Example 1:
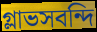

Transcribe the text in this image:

গ্লাভসবন্দি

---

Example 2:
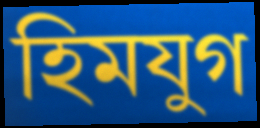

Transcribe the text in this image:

হিমযুগ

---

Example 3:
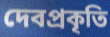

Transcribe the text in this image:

দেবপ্রকৃতি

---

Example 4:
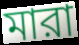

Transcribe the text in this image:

মারা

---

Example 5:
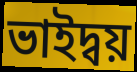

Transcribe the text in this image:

ভাইদ্বয়